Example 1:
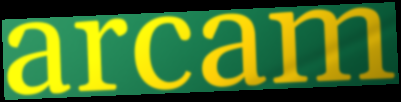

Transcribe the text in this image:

arcam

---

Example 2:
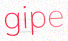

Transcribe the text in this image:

gipe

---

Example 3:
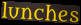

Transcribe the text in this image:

lunches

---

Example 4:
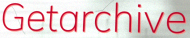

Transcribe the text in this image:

Getarchive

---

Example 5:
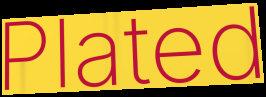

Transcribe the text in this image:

Plated